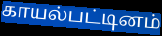
காயல்பட்டினம்